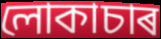
লোকাচাৰ